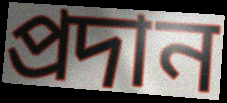
প্ৰদান